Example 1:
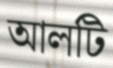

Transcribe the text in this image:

আলটি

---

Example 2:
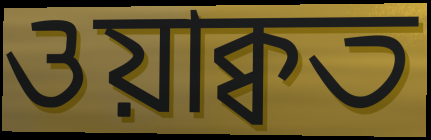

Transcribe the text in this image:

ওয়াক্বত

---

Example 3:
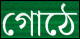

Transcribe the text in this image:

গোঠে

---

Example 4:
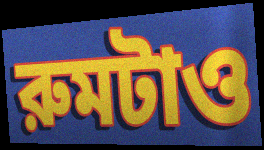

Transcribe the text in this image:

রুমটাও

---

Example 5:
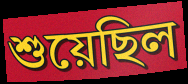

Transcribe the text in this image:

শুয়েছিল